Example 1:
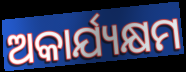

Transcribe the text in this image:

ଅକାର୍ଯ୍ୟକ୍ଷମ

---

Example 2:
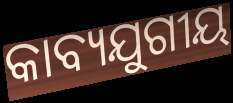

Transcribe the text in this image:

କାବ୍ୟଯୁଗୀୟ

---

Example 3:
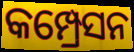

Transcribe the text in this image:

କମ୍ପ୍ରେସନ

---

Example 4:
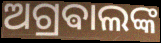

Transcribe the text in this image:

ଅଗ୍ରଵାଲଙ୍କ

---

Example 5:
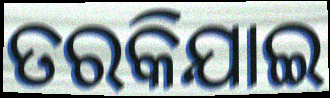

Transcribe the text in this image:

ତରକିଯାଇ